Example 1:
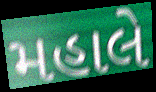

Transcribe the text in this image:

મહાલે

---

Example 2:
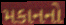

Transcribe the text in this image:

મકાનનો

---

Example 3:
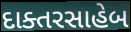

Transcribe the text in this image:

દાક્તરસાહેબ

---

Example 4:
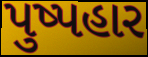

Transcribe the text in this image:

પુષ્પહાર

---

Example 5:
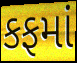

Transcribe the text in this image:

કફમાં